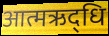
आत्मऋद्धि